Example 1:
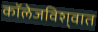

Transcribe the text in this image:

कॉलेजविश्वात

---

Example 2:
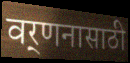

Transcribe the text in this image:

वर्णनासाठी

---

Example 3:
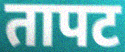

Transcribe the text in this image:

तापट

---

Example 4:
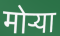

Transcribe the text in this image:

मोर्‍या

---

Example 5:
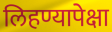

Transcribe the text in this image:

लिहण्यापेक्षा